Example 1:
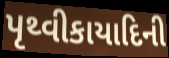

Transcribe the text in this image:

પૃથ્વીકાયાદિની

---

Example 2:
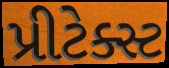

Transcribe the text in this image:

પ્રીટેક્સ્ટ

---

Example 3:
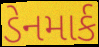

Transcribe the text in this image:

ડેનમાર્ક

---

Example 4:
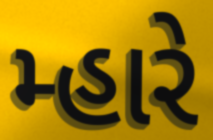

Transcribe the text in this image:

મ્હારે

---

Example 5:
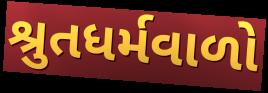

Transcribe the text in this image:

શ્રુતધર્મવાળો